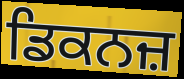
ਡਿਕਨਜ਼